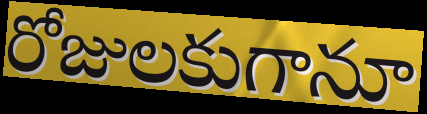
రోజులకుగానూ